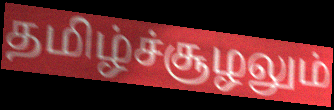
தமிழ்ச்சூழலும்